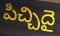
పిచ్చిదై